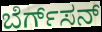
ಬೆರ್ಗ್‌ಸನ್